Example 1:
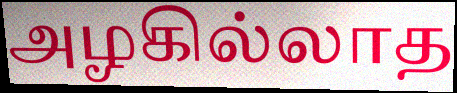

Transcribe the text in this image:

அழகில்லாத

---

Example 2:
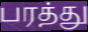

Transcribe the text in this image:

பரத்து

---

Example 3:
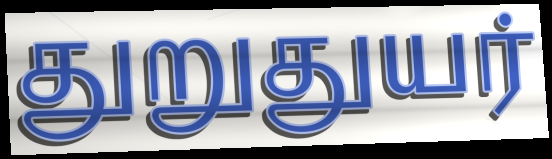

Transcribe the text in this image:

துறுதுயர்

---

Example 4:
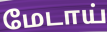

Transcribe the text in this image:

மேடாய்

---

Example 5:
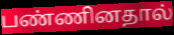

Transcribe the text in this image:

பண்ணினதால்